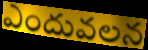
ఎందువలన